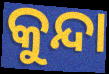
କୁନ୍ଦା